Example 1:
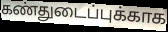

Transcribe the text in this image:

கண்துடைப்புக்காக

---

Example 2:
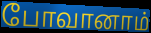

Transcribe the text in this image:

போவானாம்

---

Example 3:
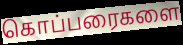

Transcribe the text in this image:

கொப்பரைகளை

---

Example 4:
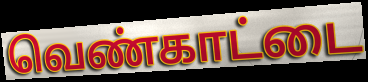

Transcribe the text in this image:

வெண்காட்டை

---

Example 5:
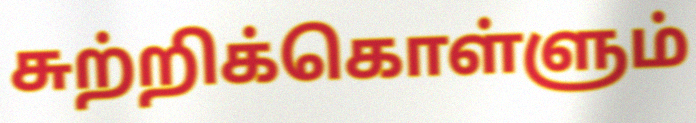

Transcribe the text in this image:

சுற்றிக்கொள்ளும்